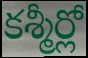
కశ్మీర్లో